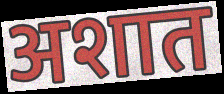
अशात